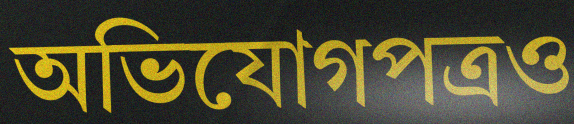
অভিযোগপত্রও